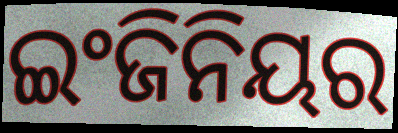
ଇଂଜିନିୟର